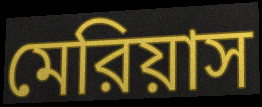
মেরিয়াস